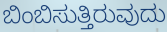
ಬಿಂಬಿಸುತ್ತಿರುವುದು